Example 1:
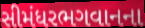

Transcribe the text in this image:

સીમંધરભગવાનના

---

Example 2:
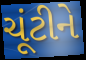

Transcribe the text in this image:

ચૂંટીને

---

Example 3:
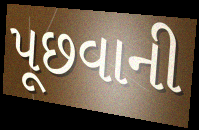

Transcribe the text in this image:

પૂછવાની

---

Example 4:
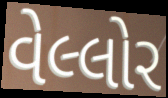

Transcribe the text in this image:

વેલ્લોર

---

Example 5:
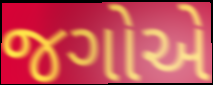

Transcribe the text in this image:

જગોએ